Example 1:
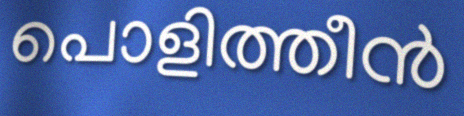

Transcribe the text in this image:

പൊളിത്തീൻ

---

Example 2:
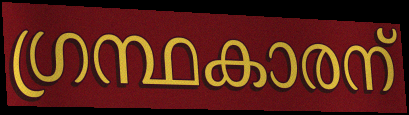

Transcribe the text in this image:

ഗ്രന്ഥകാരന്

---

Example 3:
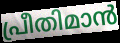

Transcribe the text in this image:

പ്രീതിമാൻ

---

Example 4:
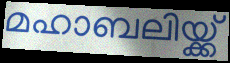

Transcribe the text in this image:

മഹാബലിയ്ക്ക്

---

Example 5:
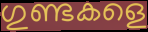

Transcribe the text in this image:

ഗുണ്ടകളെ